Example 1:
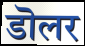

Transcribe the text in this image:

डॊलर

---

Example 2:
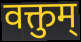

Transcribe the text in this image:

वक्तुम्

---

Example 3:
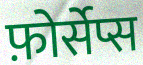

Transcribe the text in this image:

फ़ोर्सेप्स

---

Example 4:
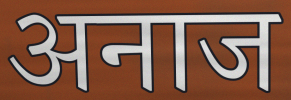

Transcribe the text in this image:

अनाज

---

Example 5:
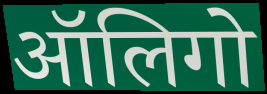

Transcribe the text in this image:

ऑलिगो